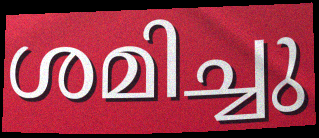
ശമിച്ചു